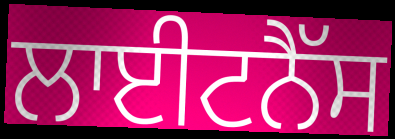
ਲਾਈਟਨੈੱਸ